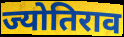
ज्योतिराव